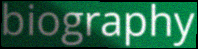
biography